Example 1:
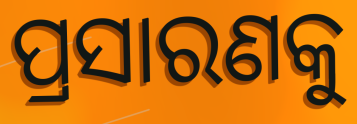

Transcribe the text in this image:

ପ୍ରସାରଣକୁ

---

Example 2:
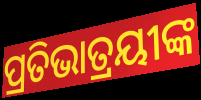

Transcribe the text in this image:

ପ୍ରତିଭାତ୍ରୟୀଙ୍କ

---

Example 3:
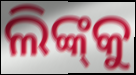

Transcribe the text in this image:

ଲିଙ୍କ୍‌କୁ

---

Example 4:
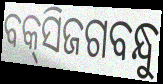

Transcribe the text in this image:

ବକ୍‌ସିଜଗବନ୍ଧୁ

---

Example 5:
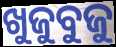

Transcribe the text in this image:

ଖୁଜୁବୁଜୁ